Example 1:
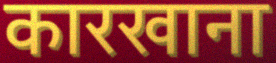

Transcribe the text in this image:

कारखाना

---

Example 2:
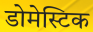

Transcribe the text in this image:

डोमेस्टिक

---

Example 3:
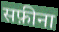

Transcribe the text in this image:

सफ़ीना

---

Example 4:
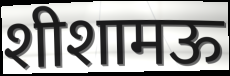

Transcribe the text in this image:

शीशामऊ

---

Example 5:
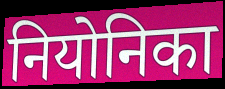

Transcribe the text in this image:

नियोनिका